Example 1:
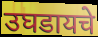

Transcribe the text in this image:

उघडायचे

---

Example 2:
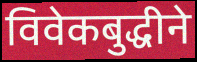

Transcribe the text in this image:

विवेकबुद्धीने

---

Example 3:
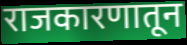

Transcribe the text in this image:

राजकारणातून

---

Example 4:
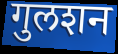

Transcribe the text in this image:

गुलशन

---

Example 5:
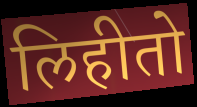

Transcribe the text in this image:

लिहीतो